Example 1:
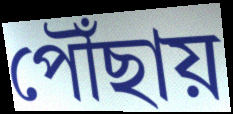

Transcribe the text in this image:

পৌঁছায়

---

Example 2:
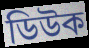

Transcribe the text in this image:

ডিউক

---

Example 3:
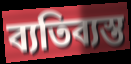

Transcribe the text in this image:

ব্যতিব্যস্ত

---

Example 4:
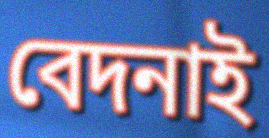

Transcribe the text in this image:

বেদনাই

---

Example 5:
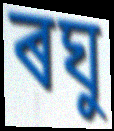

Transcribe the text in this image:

ৰঘু